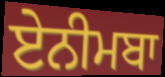
ਏਨੀਮਬਾ